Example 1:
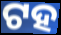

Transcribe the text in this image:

ଟହ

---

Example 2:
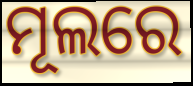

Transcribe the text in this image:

ମୂଲରେ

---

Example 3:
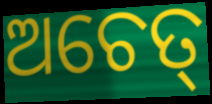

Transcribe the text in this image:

ଅଚେତ୍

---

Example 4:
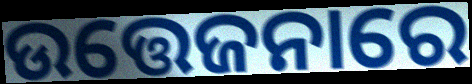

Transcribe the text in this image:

ଉତ୍ତେଜନାରେ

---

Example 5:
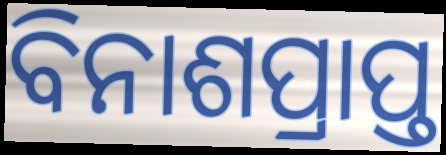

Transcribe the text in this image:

ବିନାଶପ୍ରାପ୍ତ